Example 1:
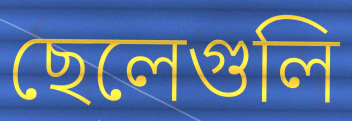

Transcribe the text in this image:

ছেলেগুলি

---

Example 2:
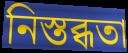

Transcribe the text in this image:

নিস্তব্ধতা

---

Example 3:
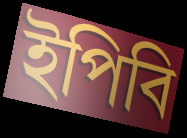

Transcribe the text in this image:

ইপিবি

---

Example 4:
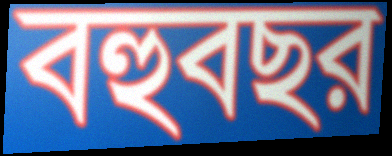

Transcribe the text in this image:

বহুবছর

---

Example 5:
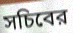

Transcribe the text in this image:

সচিবের